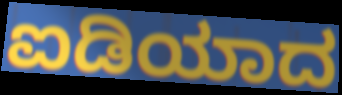
ಐಡಿಯಾದ